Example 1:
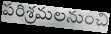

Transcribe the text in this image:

పరిశ్రమలనుంచి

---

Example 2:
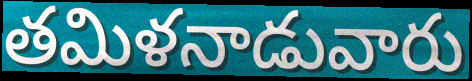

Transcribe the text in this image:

తమిళనాడువారు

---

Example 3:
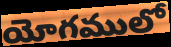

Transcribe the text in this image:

యోగములో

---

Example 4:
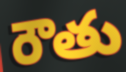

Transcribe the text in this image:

రౌతు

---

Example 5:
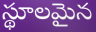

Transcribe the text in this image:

స్థూలమైన